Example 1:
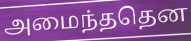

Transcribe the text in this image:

அமைந்ததென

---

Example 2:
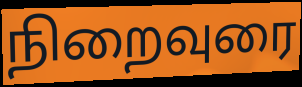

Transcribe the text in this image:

நிறைவுரை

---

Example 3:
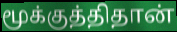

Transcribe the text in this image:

மூக்குத்திதான்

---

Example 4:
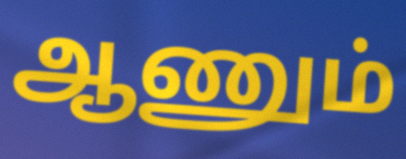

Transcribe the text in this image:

ஆணும்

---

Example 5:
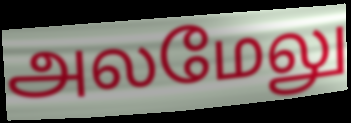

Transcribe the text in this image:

அலமேலு